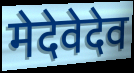
मेदेवेदेव